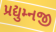
પ્રદ્યુમ્નજી